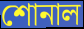
শোনাল